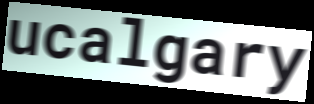
ucalgary